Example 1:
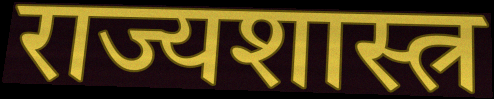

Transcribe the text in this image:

राज्यशास्त्र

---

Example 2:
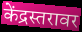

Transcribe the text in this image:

केंद्रस्तरावर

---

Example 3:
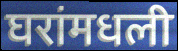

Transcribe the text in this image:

घरांमधली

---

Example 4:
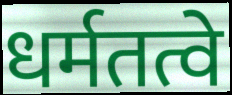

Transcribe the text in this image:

धर्मतत्वे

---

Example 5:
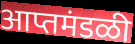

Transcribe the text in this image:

आप्तमंडळी